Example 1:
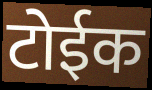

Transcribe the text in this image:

टोईक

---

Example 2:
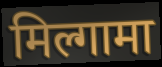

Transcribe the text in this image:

मिल्गामा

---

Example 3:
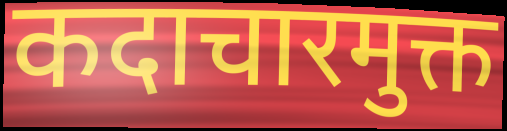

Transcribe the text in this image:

कदाचारमुक्त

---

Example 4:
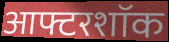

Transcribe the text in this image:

आफ्टरशॉक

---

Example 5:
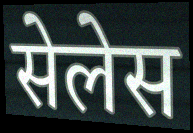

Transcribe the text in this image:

सेलेस